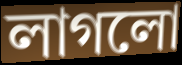
লাগলো